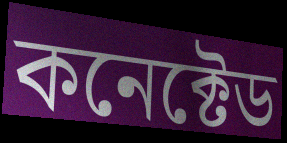
কনেক্টেড